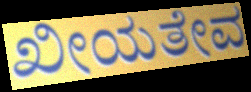
ಖೀಯತೇವ